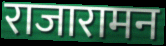
राजारामन